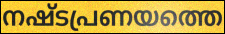
നഷ്ടപ്രണയത്തെ